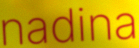
nadina